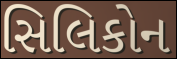
સિલિકોન